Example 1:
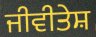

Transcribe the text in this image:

ਜੀਵੀਤੇਸ਼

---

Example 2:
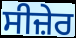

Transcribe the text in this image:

ਸੀਜ਼ੇਰ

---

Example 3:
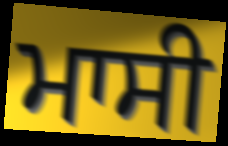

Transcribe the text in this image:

ਮਾਸੀ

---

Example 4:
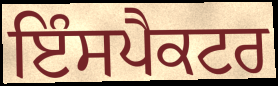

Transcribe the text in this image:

ਇੰਸਪੈਕਟਰ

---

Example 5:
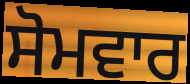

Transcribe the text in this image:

ਸੋਮਵਾਰ